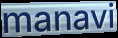
manavi